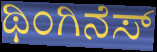
ಥಿಂಗಿನೆಸ್